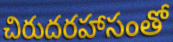
చిరుదరహాసంతో